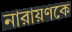
নারায়ণকে